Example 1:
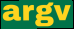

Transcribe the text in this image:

argv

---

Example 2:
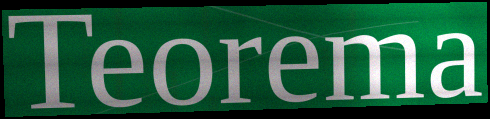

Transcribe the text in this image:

Teorema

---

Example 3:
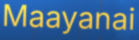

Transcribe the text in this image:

Maayanai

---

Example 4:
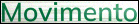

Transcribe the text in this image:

Movimento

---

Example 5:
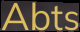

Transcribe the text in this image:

Abts